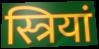
स्त्रियां